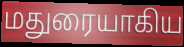
மதுரையாகிய